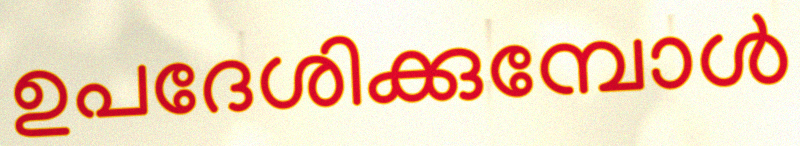
ഉപദേശിക്കുമ്പോൾ